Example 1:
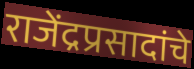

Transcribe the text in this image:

राजेंद्रप्रसादांचे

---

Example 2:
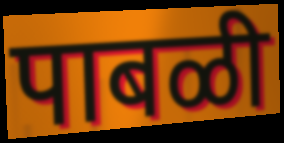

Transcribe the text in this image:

पाबळी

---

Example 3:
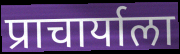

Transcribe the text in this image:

प्राचार्याला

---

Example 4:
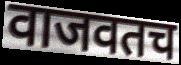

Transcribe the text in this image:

वाजवतच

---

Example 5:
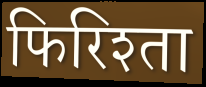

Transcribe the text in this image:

फिरिश्ता